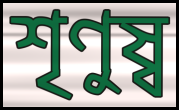
শৃণুষ্ব